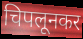
चिपलूनकर